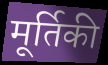
मूर्तिकी